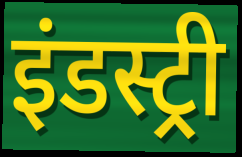
इंडस्ट्री